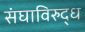
संघाविरुद्ध